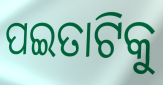
ପଇତାଟିକୁ